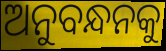
ଅନୁବନ୍ଧନକୁ